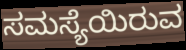
ಸಮಸ್ಯೆಯಿರುವ